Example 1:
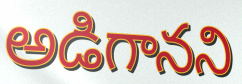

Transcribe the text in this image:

అడిగానని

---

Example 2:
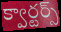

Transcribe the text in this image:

క్వార్టర్స్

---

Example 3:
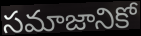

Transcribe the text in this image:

సమాజానికో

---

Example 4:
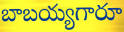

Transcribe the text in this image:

బాబయ్యగారూ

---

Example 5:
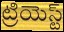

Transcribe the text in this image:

ట్రియెస్ట్